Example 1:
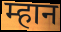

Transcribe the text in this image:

म्हान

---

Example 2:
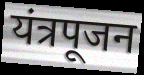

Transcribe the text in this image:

यंत्रपूजन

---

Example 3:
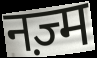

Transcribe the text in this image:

नज़्म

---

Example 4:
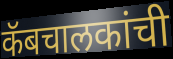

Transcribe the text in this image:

कॅबचालकांची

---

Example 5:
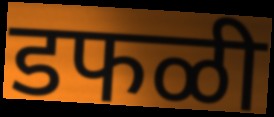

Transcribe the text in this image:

डफळी